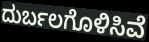
ದುರ್ಬಲಗೊಳಿಸಿವೆ